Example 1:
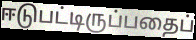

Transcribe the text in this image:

ஈடுபட்டிருப்பதைப்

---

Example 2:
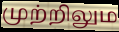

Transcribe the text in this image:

முற்றிலும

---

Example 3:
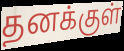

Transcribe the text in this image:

தனக்குள்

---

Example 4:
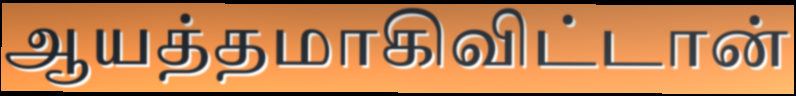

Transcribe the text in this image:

ஆயத்தமாகிவிட்டான்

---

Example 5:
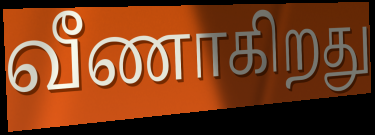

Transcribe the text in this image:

வீணாகிறது